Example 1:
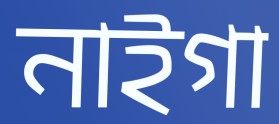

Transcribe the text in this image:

নাইগা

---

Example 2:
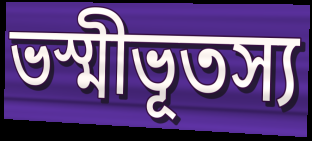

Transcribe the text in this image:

ভস্মীভূতস্য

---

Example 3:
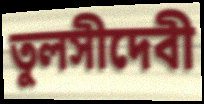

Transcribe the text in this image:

তুলসীদেবী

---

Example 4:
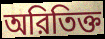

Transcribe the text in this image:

অরিতিক্ত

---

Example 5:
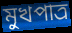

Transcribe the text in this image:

মুখপাত্র